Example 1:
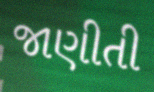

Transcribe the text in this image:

જાણીતી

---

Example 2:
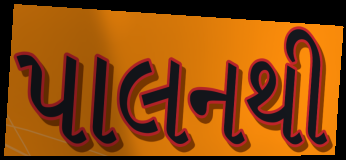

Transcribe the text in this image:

પાલનથી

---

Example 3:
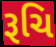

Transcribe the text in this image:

રૂચિ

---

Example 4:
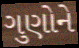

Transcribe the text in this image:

ગુણોને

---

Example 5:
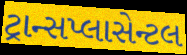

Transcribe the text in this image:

ટ્રાન્સપ્લાસેન્ટલ